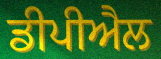
ਡੀਪੀਐਲ